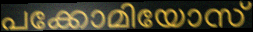
പക്കോമിയോസ്